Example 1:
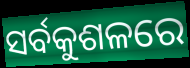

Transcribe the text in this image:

ସର୍ବକୁଶଳରେ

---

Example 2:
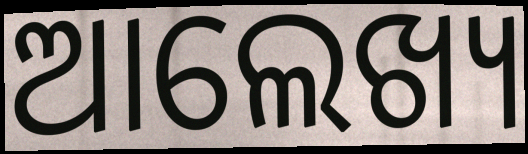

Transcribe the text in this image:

ଆଲେଖ୍ୟ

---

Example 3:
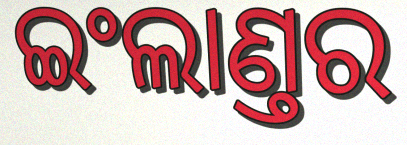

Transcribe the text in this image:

ଇଂଲାଣ୍ତର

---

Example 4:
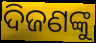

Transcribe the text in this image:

ଦିଜଣଙ୍କୁ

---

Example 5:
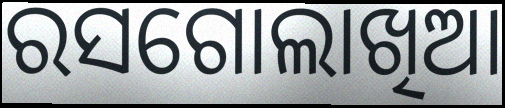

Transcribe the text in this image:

ରସଗୋଲାଖିଆ